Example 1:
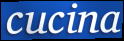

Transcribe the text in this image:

cucina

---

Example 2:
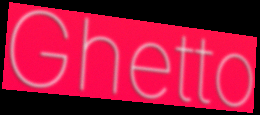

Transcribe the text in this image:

Ghetto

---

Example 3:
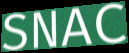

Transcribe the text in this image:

SNAC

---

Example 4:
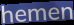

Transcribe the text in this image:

hemen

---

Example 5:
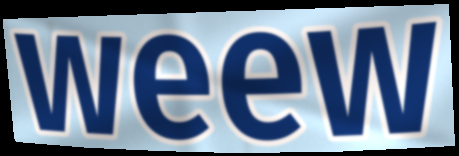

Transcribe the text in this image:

weew